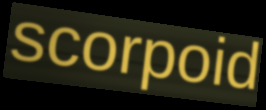
scorpoid